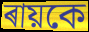
ৰায়কে